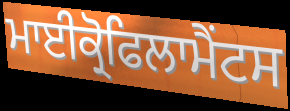
ਮਾਈਕ੍ਰੋਫਿਲਾਮੈਂਟਸ